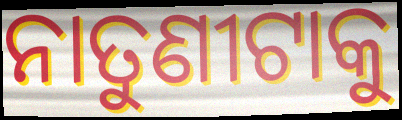
ନାତୁଣୀଟାକୁ